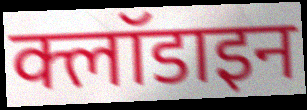
क्लॉडाइन